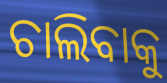
ଚାଲିବାକୁ